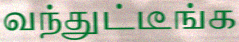
வந்துட்டீங்க